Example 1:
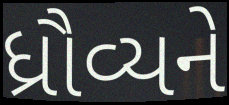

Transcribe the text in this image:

ધ્રૌવ્યને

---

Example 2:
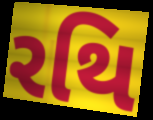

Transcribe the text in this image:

રથિ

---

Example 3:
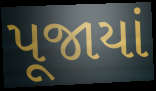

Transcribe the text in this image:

પૂજાયાં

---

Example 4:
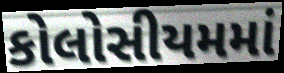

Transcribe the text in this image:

કોલોસીયમમાં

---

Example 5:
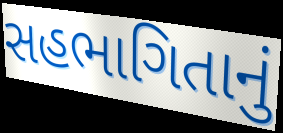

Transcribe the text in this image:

સહભાગિતાનું